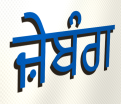
ਜ਼ੇਬੰਗ